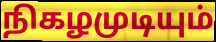
நிகழமுடியும்